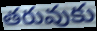
తరువుకు